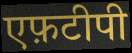
एफ़टीपी